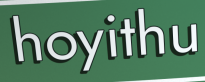
hoyithu